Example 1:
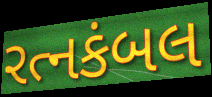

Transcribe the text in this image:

રત્નકંબલ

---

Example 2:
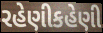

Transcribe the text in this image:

રહેણીકહેણી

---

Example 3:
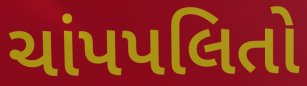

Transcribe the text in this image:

ચાંપપલિતો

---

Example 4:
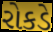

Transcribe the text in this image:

રોકડે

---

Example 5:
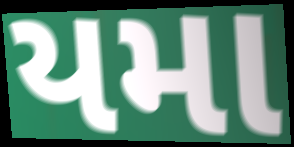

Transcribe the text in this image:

યમા